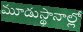
మూడుస్థానాల్లో